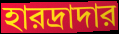
হারদ্রাদার